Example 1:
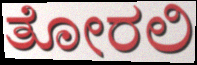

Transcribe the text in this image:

ತೋರಲಿ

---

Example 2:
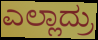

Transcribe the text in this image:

ಎಲ್ಲಾದ್ರು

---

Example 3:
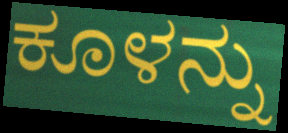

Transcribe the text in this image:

ಕೂಳನ್ನು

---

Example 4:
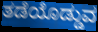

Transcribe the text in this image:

ತಡೆಯೊಡ್ಡುವ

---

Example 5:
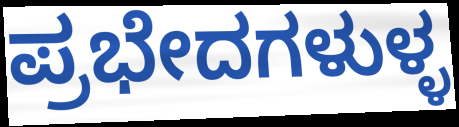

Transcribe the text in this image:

ಪ್ರಭೇದಗಳುಳ್ಳ